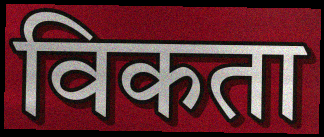
विकता